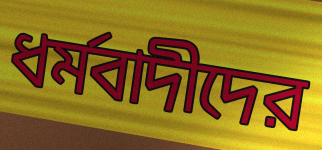
ধর্মবাদীদের